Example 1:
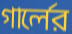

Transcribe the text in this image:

গার্লের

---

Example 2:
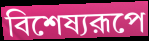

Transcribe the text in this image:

বিশেষ্যরূপে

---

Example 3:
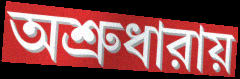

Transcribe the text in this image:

অশ্রুধারায়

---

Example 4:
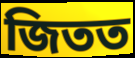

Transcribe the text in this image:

জিতত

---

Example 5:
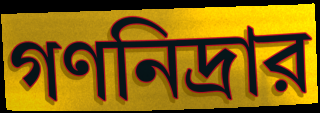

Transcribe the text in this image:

গণনিদ্রার